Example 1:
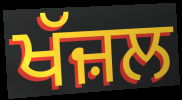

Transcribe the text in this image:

ਖੱਜ਼ਲ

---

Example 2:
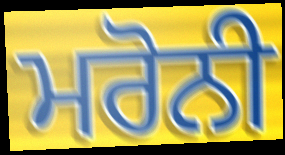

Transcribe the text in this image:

ਮਰੋਨੀ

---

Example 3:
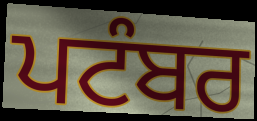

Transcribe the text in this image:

ਪਟੰਬਰ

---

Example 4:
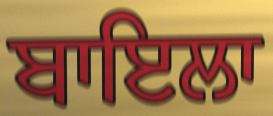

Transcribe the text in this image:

ਬਾਇਲਾ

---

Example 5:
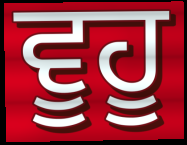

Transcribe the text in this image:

ਵੂਹੂ